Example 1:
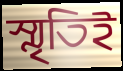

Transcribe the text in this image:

স্মৃতিই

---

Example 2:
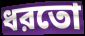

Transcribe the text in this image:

ধরতো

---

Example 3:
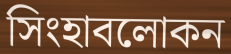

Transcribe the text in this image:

সিংহাবলোকন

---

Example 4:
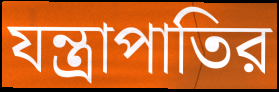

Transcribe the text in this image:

যন্ত্রাপাতির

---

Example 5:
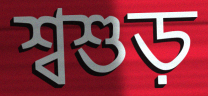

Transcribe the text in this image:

শ্বশুড়